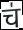
च॑